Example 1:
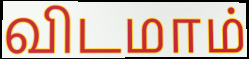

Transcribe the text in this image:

விடமாம்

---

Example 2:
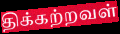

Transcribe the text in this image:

திக்கற்றவள்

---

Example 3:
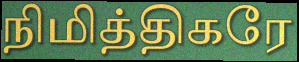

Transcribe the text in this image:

நிமித்திகரே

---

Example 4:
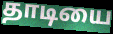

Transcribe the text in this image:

தாடியை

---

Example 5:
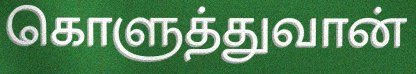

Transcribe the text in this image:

கொளுத்துவான்